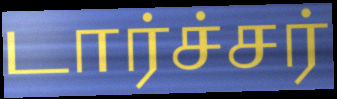
டார்ச்சர்